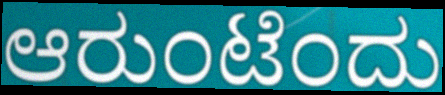
ಆರುಂಟೆಂದು